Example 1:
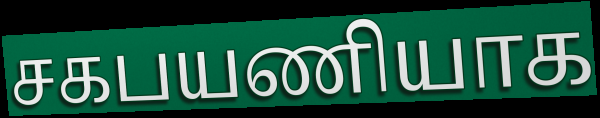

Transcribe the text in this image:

சகபயணியாக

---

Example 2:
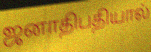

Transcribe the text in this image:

ஜனாதிபதியால்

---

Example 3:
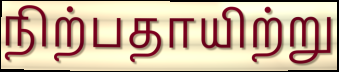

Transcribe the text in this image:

நிற்பதாயிற்று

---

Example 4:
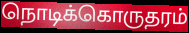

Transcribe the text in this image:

நொடிக்கொருதரம்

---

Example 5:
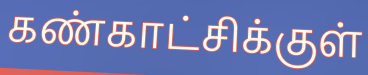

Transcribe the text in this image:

கண்காட்சிக்குள்